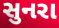
સુનરા